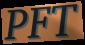
PFT